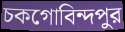
চকগোবিন্দপুর